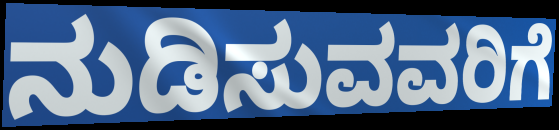
ನುಡಿಸುವವರಿಗೆ